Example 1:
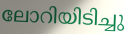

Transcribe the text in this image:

ലോറിയിടിച്ചു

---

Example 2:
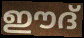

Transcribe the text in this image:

ഈദ്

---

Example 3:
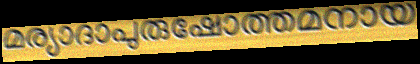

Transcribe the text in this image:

മര്യാദാപുരുഷോത്തമനായ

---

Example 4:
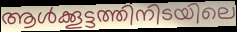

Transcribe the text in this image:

ആൾക്കൂട്ടത്തിനിടയിലെ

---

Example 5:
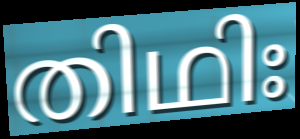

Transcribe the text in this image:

തിഥിഃ